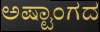
ಅಷ್ಟಾಂಗದ